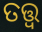
ତତ୍ତ୍ବ